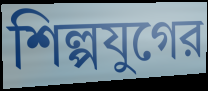
শিল্পযুগের